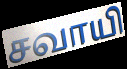
சவாயி